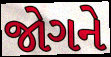
જોગને